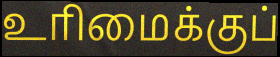
உரிமைக்குப்